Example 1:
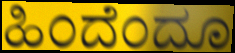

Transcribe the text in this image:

ಹಿಂದೆಂದೂ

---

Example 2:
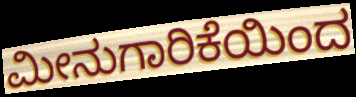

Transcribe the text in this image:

ಮೀನುಗಾರಿಕೆಯಿಂದ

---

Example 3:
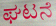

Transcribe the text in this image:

ಘಟನೆ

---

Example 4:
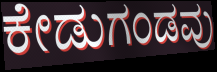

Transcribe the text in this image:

ಕೇಡುಗಂಡವು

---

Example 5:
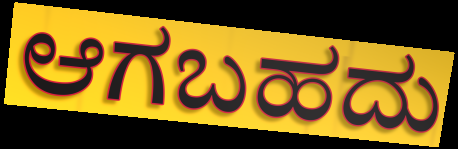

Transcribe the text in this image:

ಆಗಬಹದು